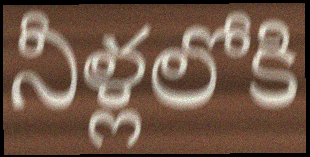
నీళ్లలోకి